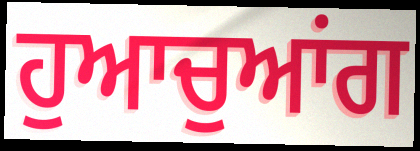
ਹੁਆਚੁਆਂਗ